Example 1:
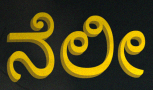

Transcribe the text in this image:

ನೆಲೀ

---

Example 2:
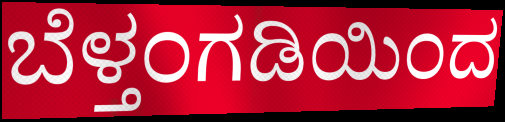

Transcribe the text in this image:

ಬೆಳ್ತಂಗಡಿಯಿಂದ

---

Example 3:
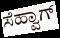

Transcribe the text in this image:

ಸೆಹ್ವಾಗ್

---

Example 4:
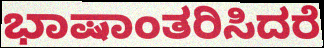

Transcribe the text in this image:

ಭಾಷಾಂತರಿಸಿದರೆ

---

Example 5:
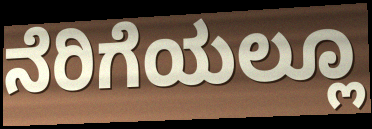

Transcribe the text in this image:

ನೆರಿಗೆಯಲ್ಲೂ